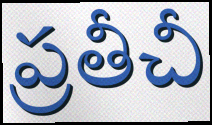
ప్రతీచీ